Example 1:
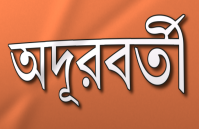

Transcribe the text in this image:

অদূরবর্তী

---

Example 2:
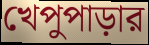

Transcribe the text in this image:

খেপুপাড়ার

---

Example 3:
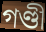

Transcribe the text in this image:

গণ্ডী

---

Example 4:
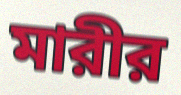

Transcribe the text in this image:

মারীর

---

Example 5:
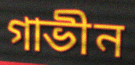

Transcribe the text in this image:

গাভীন